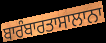
ਬਾਰੰਬਾਰਤਾਸਾਲਾਨਾ